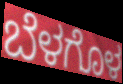
ಬೆಳಗೊಳ